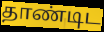
தாண்டிட